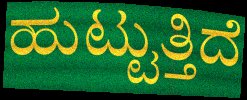
ಹುಟ್ಟುತ್ತಿದೆ